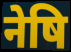
नेषि